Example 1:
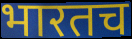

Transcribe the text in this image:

भारतच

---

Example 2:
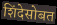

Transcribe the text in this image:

शिंदेसोबत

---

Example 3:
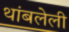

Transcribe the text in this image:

थांबलेली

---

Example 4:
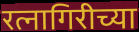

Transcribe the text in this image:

रत्नागिरीच्या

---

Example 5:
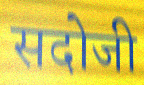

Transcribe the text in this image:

सदोजी